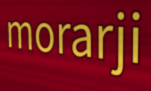
morarji